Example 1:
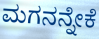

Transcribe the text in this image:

ಮಗನನ್ನೇಕೆ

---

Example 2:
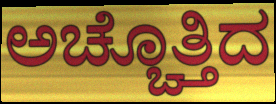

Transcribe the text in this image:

ಅಚ್ಚೊತ್ತಿದ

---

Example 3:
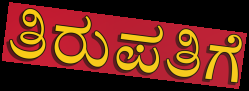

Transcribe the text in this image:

ತಿರುಪತಿಗೆ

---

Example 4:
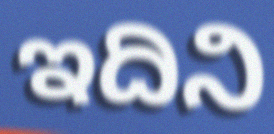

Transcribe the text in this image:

ಇದಿನಿ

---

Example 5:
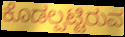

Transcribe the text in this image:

ಕೊಡಲ್ಪಟ್ಟಿರುವ